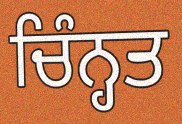
ਚਿੰਨ੍ਹਤ